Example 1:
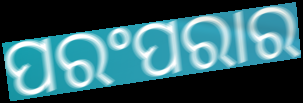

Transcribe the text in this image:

ପରଂପରାର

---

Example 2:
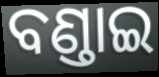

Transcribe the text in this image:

ବଣ୍ଡାଇ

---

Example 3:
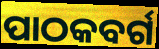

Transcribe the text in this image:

ପାଠକବର୍ଗ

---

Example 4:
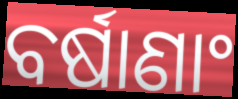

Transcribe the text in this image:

ବର୍ଷାଣାଂ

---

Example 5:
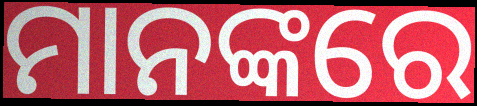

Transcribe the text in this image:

ମାନଙ୍କରେ